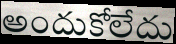
అందుకోలేదు